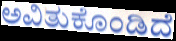
ಅವಿತುಕೊಂಡಿದೆ